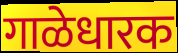
गाळेधारक